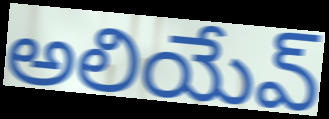
అలియేవ్